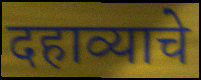
दहाव्याचे